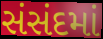
સંસંદમાં